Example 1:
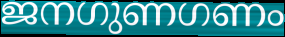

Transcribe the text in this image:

ജനഗുണഗണം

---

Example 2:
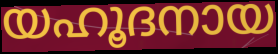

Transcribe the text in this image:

യഹൂദനായ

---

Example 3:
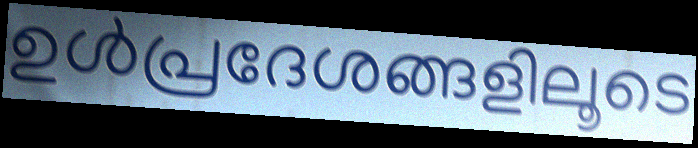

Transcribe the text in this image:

ഉൾപ്രദേശങ്ങളിലൂടെ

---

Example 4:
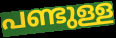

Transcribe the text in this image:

പണ്ടുള്ള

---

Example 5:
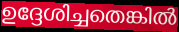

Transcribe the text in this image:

ഉദ്ദേശിച്ചതെങ്കിൽ